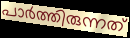
പാർത്തിരുന്നത്